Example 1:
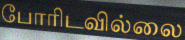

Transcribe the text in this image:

போரிடவில்லை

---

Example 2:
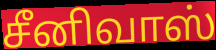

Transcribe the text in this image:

சீனிவாஸ்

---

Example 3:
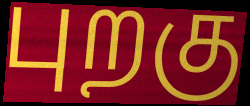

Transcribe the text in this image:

புறகு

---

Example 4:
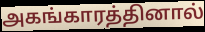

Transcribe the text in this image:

அகங்காரத்தினால்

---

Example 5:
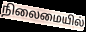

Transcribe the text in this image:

நிலைமையில்